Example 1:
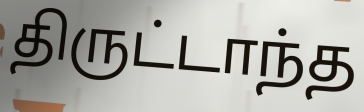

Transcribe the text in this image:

திருட்டாந்த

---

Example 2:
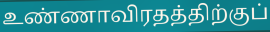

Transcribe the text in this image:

உண்ணாவிரதத்திற்குப்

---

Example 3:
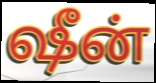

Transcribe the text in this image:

ஷீன்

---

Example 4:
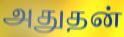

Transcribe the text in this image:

அதுதன்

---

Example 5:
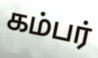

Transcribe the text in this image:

கம்பர்